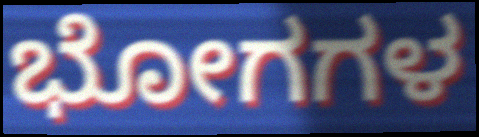
ಭೋಗಗಳ